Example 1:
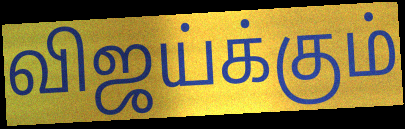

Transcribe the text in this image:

விஜய்க்கும்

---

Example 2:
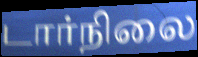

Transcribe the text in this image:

டார்நிலை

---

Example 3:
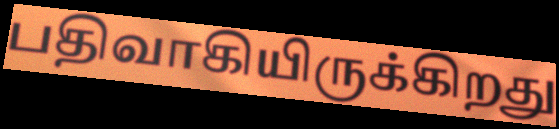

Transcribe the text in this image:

பதிவாகியிருக்கிறது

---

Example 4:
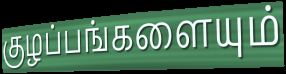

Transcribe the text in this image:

குழப்பங்களையும்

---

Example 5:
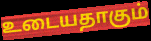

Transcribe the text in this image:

உடையதாகும்